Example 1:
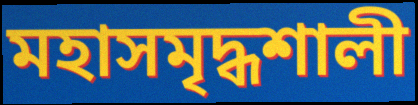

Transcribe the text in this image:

মহাসমৃদ্ধশালী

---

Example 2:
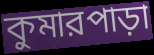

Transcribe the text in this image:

কুমারপাড়া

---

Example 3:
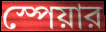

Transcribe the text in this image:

স্পেয়ার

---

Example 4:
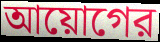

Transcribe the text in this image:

আয়োগের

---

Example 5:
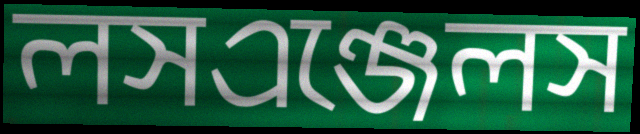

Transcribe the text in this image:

লসএঞ্জেলস